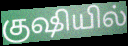
குஷியில்